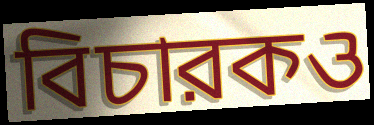
বিচারকও